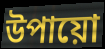
উপায়ো